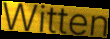
Witten